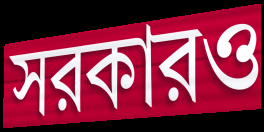
সরকারও